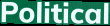
Political